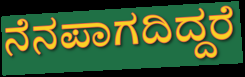
ನೆನಪಾಗದಿದ್ದರೆ